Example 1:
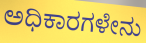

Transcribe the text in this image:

ಅಧಿಕಾರಗಳೇನು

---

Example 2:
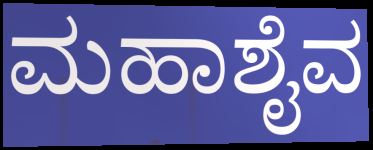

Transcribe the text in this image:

ಮಹಾಶೈವ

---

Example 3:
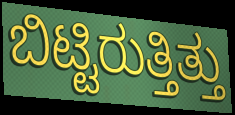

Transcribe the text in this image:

ಬಿಟ್ಟಿರುತ್ತಿತ್ತು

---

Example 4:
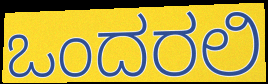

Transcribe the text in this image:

ಒಂದರಲಿ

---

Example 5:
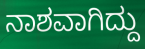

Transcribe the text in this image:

ನಾಶವಾಗಿದ್ದು